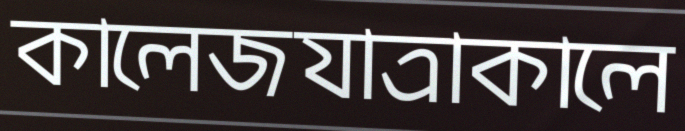
কালেজযাত্রাকালে